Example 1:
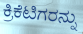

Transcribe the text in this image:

ಕ್ರಿಕೆಟಿಗರನ್ನು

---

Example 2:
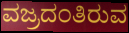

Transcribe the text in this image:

ವಜ್ರದಂತಿರುವ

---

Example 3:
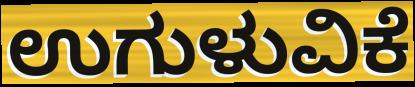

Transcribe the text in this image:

ಉಗುಳುವಿಕೆ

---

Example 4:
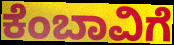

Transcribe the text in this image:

ಕೆಂಬಾವಿಗೆ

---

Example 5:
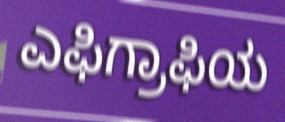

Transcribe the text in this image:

ಎಫಿಗ್ರಾಫಿಯ